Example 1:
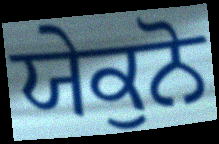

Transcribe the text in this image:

ਯੇਕੁਨੋ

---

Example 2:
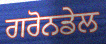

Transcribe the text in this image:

ਗਰੋਨਡੇਲ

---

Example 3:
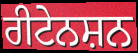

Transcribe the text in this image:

ਰੀਟੇਨਸ਼ਨ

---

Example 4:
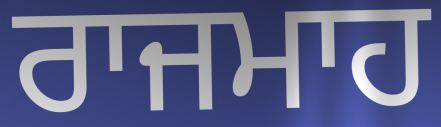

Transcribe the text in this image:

ਰਾਜਮਾਹ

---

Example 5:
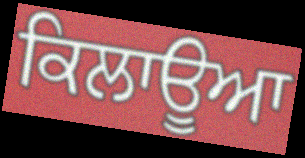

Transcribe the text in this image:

ਕਿਲਾਊਆ